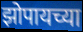
झोपायच्या